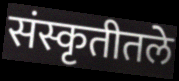
संस्कृतीतले